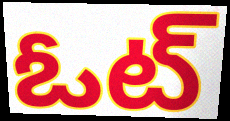
ఓట్